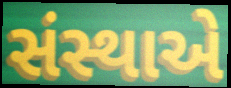
સંસ્થાએ